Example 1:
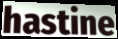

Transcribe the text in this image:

hastine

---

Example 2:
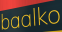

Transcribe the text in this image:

baalko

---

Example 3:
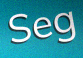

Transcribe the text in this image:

Seg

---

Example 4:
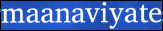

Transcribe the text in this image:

maanaviyate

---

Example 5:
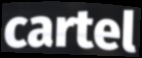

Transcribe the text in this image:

cartel